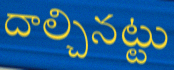
దాల్చినట్టు